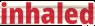
inhaled